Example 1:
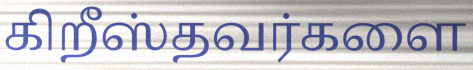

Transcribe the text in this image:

கிறீஸ்தவர்களை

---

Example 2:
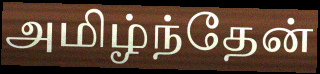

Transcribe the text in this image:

அமிழ்ந்தேன்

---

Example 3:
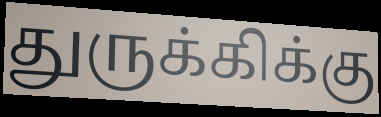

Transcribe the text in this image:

துருக்கிக்கு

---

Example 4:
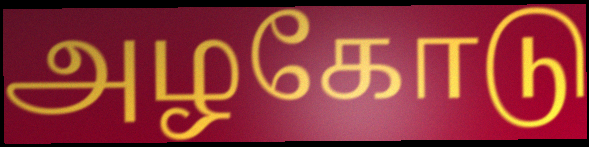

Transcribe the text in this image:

அழகோடு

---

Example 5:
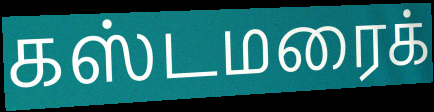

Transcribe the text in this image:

கஸ்டமரைக்